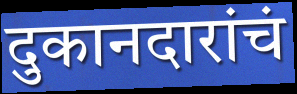
दुकानदारांचं